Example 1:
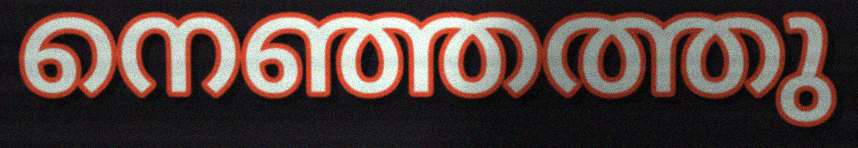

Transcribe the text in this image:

നെഞ്ഞത്തു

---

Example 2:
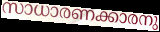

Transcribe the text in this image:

സാധാരണക്കാരനു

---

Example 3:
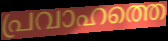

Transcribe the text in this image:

പ്രവാഹത്തെ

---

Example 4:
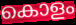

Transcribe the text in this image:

കൊളം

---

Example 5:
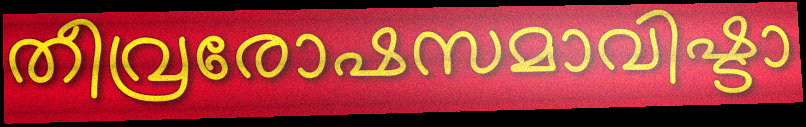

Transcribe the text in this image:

തീവ്രരോഷസമാവിഷ്ടാ